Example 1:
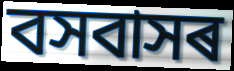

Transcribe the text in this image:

বসবাসৰ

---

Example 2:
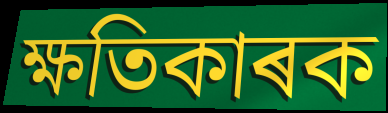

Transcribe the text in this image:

ক্ষতিকাৰক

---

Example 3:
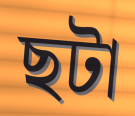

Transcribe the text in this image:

ছটা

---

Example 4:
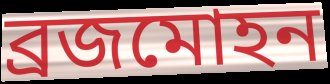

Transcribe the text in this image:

ব্ৰজমোহন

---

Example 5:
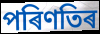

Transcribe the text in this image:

পৰিণতিৰ